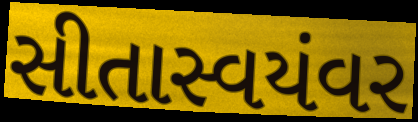
સીતાસ્વયંવર